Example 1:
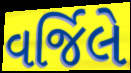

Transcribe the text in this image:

વર્જિલે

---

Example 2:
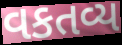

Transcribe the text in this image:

વકતવ્ય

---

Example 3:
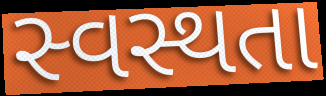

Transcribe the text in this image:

સ્વસ્થતા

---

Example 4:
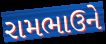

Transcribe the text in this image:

રામભાઉને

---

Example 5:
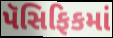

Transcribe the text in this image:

પૅસિફિકમાં